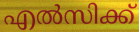
എൽസിക്ക്